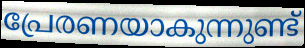
പ്രേരണയാകുന്നുണ്ട്